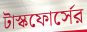
টাস্কফোর্সের